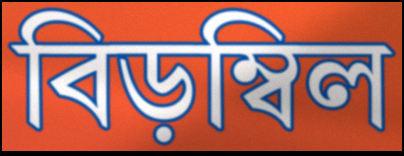
বিড়ম্বিল